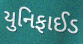
યુનિફાઈડ